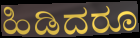
ಹಿಡಿದರೂ